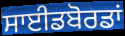
ਸਾਈਡਬੋਰਡਾਂ